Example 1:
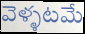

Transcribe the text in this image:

వెళ్ళటమే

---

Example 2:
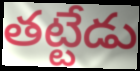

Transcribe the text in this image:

తట్టేడు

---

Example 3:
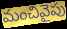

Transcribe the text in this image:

మంచివైపు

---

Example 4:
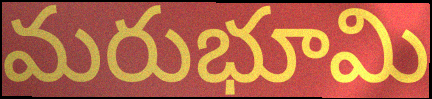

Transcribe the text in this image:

మరుభూమి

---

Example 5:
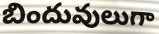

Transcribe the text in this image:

బిందువులుగా